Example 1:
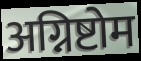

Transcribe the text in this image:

अग्निष्टोम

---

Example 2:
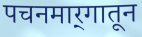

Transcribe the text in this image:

पचनमार्गातून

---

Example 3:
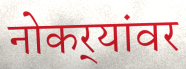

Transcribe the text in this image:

नोकर्यांवर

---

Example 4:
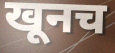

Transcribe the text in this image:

खूनच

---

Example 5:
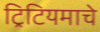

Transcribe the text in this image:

ट्रिटियमाचे